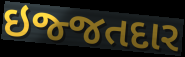
ઇજ્જતદાર